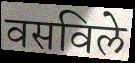
वसविले